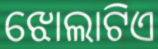
ଝୋଲାଟିଏ